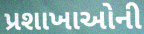
પ્રશાખાઓની